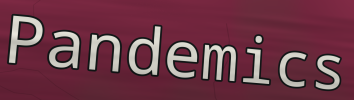
Pandemics